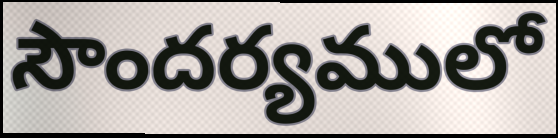
సౌందర్యములో